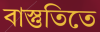
বাস্তুতিতে